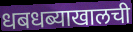
धबधब्याखालची